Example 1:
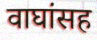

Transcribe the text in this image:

वाघांसह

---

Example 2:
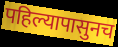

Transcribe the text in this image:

पहिल्यापासुनच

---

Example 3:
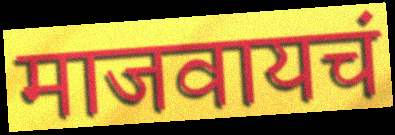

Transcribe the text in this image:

माजवायचं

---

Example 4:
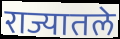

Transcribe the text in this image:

राज्यातले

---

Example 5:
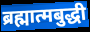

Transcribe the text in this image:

ब्रह्मात्मबुद्धी